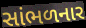
સાંભળનાર